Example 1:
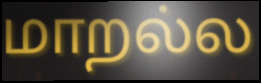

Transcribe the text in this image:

மாறல்ல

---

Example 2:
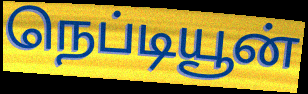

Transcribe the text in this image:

நெப்டியூன்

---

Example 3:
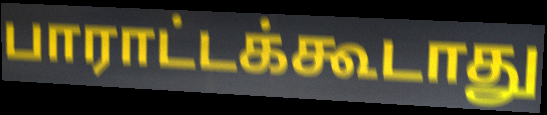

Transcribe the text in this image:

பாராட்டக்கூடாது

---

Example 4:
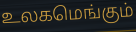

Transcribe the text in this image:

உலகமெங்கும்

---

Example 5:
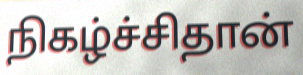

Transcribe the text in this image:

நிகழ்ச்சிதான்